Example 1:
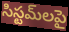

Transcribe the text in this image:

సిస్టమ్‌లపై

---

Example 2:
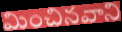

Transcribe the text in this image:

మించినవాని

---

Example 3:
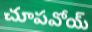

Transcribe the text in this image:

చూపవోయ్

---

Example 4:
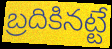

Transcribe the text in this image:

బ్రదికినట్టే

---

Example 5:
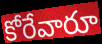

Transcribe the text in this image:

కోరేవారూ